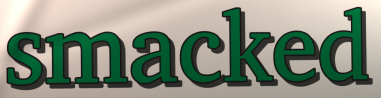
smacked